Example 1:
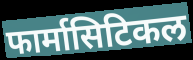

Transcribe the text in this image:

फार्मासिटिकल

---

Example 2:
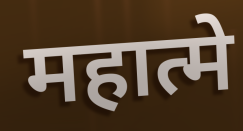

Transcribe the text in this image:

महात्मे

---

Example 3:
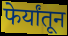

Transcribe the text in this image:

फेर्यांतून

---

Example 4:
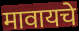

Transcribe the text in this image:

मावायचे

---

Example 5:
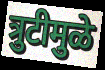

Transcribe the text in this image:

त्रुटीमुळे